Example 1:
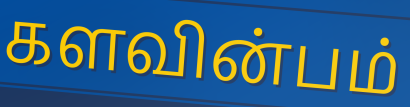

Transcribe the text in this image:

களவின்பம்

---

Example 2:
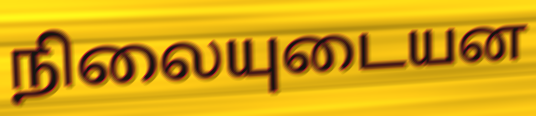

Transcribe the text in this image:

நிலையுடையன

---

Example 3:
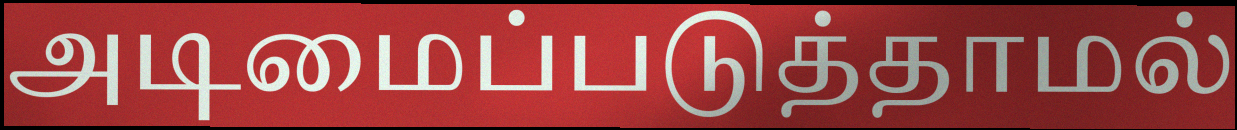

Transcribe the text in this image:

அடிமைப்படுத்தாமல்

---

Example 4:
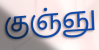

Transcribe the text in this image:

குஞ்ஞு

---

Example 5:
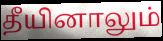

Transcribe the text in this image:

தீயினாலும்